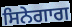
ਸਿਨੇਗਾਗ